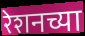
रेशनच्या